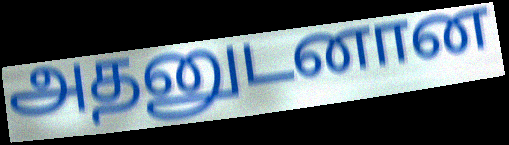
அதனுடனான